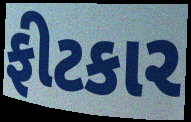
ફીટકાર